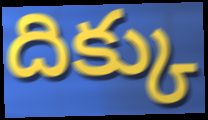
దిక్కు